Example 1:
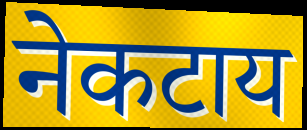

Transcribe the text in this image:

नेकटाय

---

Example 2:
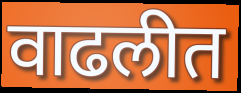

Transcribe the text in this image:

वाढलीत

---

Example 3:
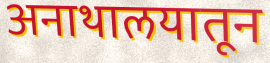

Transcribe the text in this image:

अनाथालयातून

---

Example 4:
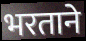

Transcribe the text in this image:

भरताने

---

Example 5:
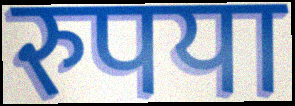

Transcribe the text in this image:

रुपया